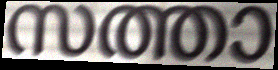
സത്താ